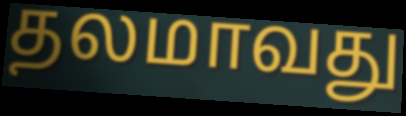
தலமாவது